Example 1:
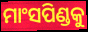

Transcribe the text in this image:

ମାଂସପିଣ୍ଡକୁ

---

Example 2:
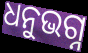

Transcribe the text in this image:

ଧନୁଭଗ୍ନ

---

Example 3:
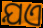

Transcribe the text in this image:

ଯଏ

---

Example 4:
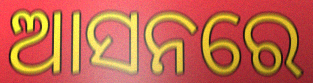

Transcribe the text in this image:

ଆସନରେ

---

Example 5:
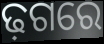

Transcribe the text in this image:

ଢ଼ଗରେ